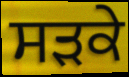
ਸਡ਼ਕੇ